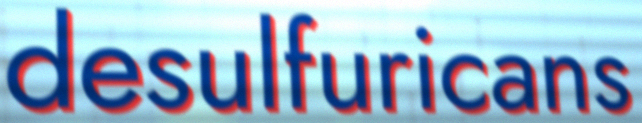
desulfuricans